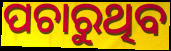
ପଚାରୁଥିବ